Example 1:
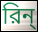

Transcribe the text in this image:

রিন্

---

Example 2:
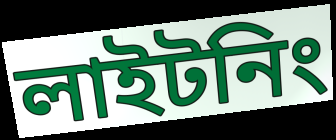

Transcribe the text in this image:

লাইটনিং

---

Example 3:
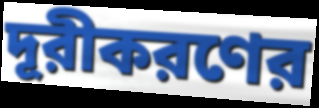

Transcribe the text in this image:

দূরীকরণের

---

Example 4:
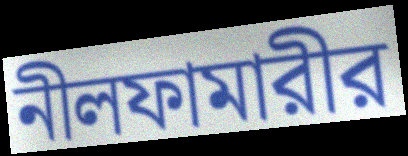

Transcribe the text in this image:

নীলফামারীর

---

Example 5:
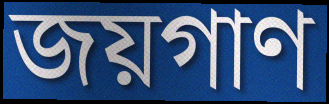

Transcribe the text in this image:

জয়গাণ